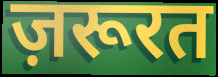
ज़रूरत